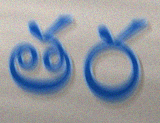
తర